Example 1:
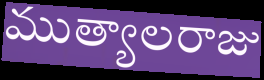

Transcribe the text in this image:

ముత్యాలరాజు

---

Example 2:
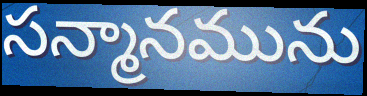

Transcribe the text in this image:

సన్మానమును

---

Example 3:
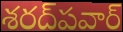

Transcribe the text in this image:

శరద్‌పవార్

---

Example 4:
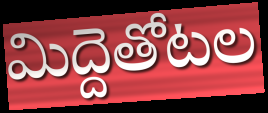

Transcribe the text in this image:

మిద్దెతోటల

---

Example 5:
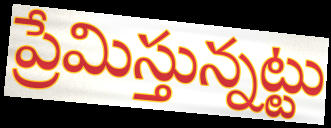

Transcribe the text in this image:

ప్రేమిస్తున్నట్టు